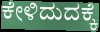
ಕೇಳಿದುದಕ್ಕೆ